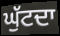
ਘੁੱਟਦਾ